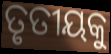
ତୃତୀୟକୁ